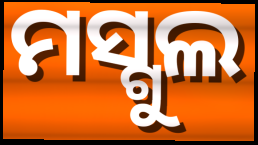
ମସ୍ଗୁଲ